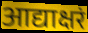
आद्याक्षरं